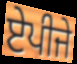
ਏਪੀਜੇ